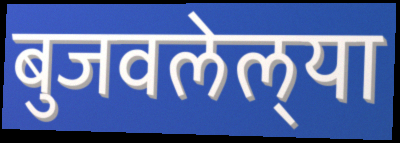
बुजवलेल्या